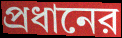
প্রধানের